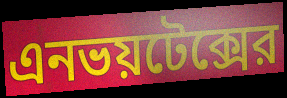
এনভয়টেক্সের